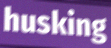
husking